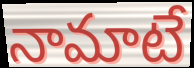
నామాటే